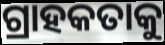
ଗ୍ରାହକତାକୁ